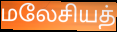
மலேசியத்